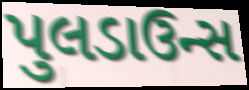
પુલડાઉન્સ